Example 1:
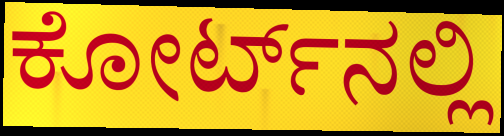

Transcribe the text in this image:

ಕೋರ್ಟ್‌ನಲ್ಲಿ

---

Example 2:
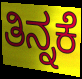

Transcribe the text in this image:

ತಿನ್ನಕೆ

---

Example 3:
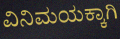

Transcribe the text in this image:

ವಿನಿಮಯಕ್ಕಾಗಿ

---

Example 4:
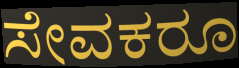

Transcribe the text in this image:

ಸೇವಕರೂ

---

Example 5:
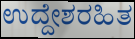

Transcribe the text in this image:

ಉದ್ದೇಶರಹಿತ